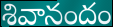
శివానందం